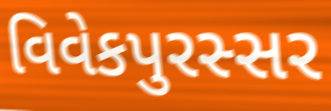
વિવેકપુરસ્સર